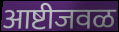
आष्टीजवळ